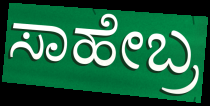
ಸಾಹೇಬ್ರ